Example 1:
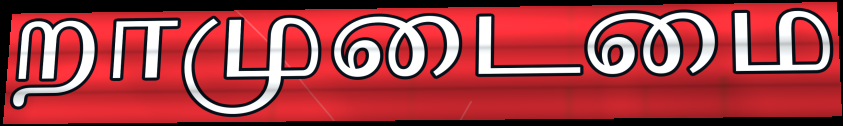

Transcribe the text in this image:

றாமுடைமை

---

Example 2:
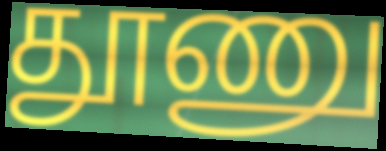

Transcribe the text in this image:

தூணு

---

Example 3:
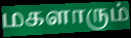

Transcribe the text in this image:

மகளாரும்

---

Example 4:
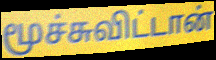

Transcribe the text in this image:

மூச்சுவிட்டான்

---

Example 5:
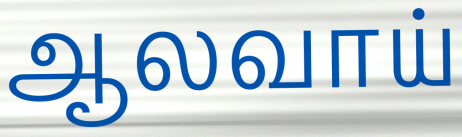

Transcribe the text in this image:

ஆலவாய்